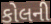
કોલની